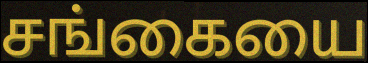
சங்கையை